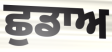
ਛੁਡਾਅ